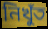
নিখুঁত